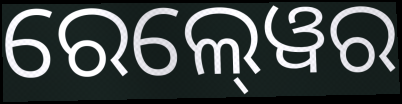
ରେଲ୍‍ୱେର